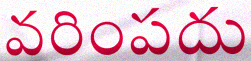
వరింపదు